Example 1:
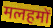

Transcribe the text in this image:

मलहमों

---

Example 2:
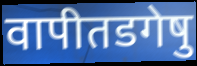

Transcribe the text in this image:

वापीतडगेषु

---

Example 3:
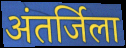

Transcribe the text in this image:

अंतर्जिला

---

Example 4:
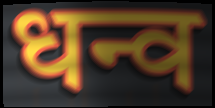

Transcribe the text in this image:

धन्व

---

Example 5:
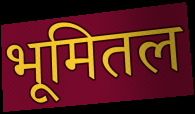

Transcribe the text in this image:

भूमितल